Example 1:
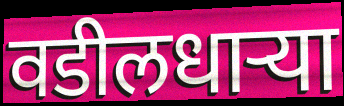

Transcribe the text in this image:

वडीलधार्‍या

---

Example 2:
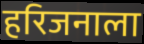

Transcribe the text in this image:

हरिजनाला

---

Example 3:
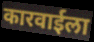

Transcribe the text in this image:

कारवाईला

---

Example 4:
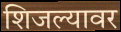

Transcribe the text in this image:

शिजल्यावर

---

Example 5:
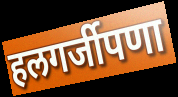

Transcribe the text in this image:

हलगर्जीपणा